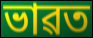
ভাৱত